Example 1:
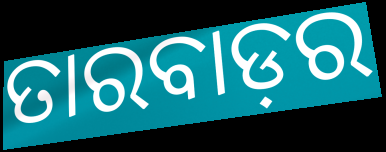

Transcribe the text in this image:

ତାରବାଡ଼ର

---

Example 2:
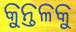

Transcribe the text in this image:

କୁନ୍ତଳକୁ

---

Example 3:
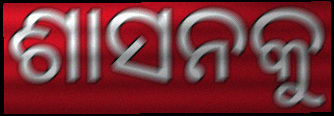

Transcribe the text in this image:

ଶାସନକୁ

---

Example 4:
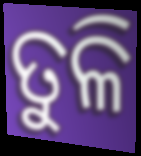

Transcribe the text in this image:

ତୁଳି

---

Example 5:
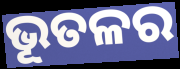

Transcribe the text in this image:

ଭୂତଳର